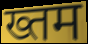
ख्तम